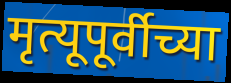
मृत्यूपूर्वीच्या